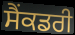
ਸੈਂਕਡਰੀ